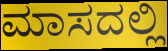
ಮಾಸದಲ್ಲಿ